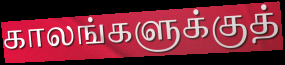
காலங்களுக்குத்